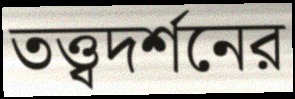
তত্ত্বদর্শনের